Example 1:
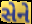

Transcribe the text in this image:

સેને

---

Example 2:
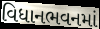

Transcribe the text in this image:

વિધાનભવનમાં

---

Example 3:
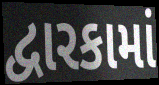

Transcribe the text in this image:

દ્વારકામાં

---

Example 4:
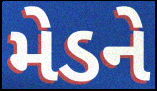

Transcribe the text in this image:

મેડને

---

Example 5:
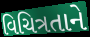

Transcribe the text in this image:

વિચિત્રતાને